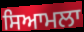
ਸਿਆਮਲਾ